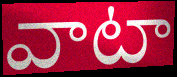
వాటా